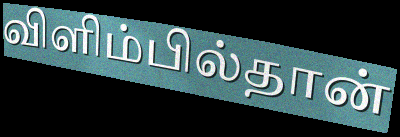
விளிம்பில்தான்